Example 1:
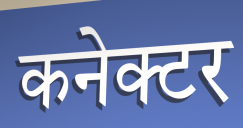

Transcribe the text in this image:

कनेक्टर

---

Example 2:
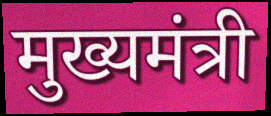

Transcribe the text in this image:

मुख्यमंत्री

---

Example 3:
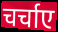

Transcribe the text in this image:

चर्चाए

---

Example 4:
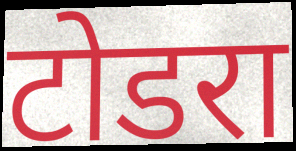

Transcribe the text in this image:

टोडरा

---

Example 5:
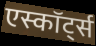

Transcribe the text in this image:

एस्कॉर्ट्स